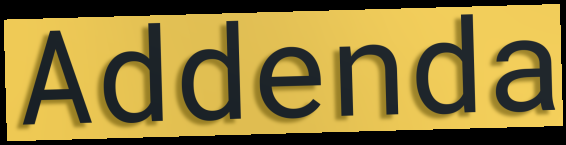
Addenda